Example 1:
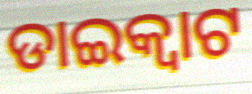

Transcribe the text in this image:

ଡାଇକ୍ଵାଟ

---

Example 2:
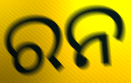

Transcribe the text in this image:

ରନ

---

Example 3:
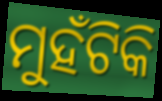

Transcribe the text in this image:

ମୁହଁଟିକି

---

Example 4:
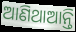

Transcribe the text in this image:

ଆଣିଥାଆନ୍ତି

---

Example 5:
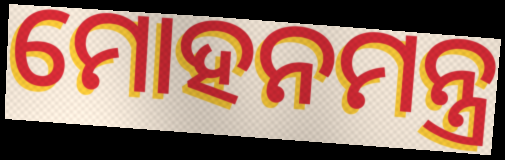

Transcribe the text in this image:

ମୋହନମନ୍ତ୍ର